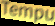
Tempu